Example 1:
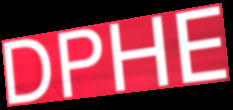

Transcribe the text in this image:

DPHE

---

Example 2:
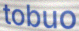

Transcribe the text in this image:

tobuo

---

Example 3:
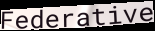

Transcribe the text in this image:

Federative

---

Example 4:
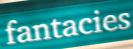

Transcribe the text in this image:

fantacies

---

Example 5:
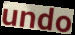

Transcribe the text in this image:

undo